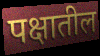
पक्षातील